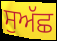
ਸੁਅੱਛ